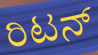
ರಿಟನ್